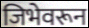
जिभेवरून